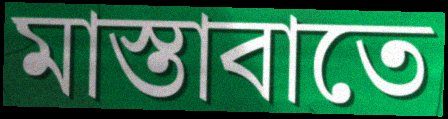
মাস্তাবাতে